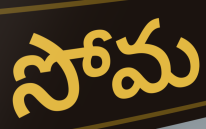
సోమ